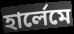
হার্লেমে